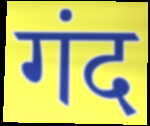
गंद